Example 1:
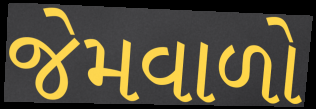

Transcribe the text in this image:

જેમવાળો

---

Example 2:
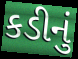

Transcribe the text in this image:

કડીનું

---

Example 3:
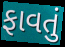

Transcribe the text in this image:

ફાવતું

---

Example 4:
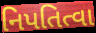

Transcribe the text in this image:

નિપતિત્વા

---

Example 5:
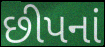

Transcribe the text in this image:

છીપનાં